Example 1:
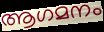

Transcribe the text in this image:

ആഗമനം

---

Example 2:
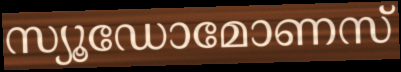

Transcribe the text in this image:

സ്യൂഡോമോണസ്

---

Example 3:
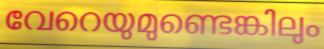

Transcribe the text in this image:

വേറെയുമുണ്ടെങ്കിലും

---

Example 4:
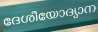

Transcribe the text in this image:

ദേശീയോദ്യാന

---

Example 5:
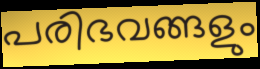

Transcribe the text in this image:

പരിഭവങ്ങളും